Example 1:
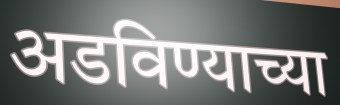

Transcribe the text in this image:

अडविण्याच्या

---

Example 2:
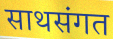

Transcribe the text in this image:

साथसंगत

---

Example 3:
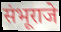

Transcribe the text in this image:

संभूराजे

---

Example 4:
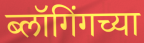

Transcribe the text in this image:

ब्लॉगिंगच्या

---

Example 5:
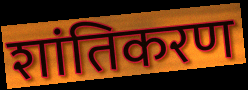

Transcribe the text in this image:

शांतिकरण